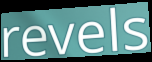
revels